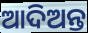
ଆଦିଅନ୍ତ